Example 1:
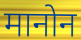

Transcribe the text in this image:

मानोन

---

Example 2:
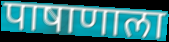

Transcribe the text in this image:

पाषाणाला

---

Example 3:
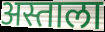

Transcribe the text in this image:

अस्ताला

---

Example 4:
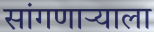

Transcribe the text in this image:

सांगणार्‍याला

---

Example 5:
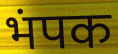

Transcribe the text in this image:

भंपक